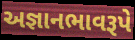
અજ્ઞાનભાવરૂપે